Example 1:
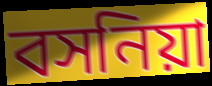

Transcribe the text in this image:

বসনিয়া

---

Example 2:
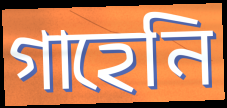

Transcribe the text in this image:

গাহেনি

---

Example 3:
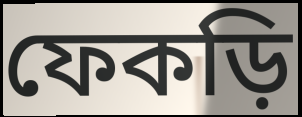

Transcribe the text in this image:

ফেকড়ি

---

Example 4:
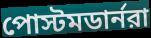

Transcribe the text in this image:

পোস্টমডার্নরা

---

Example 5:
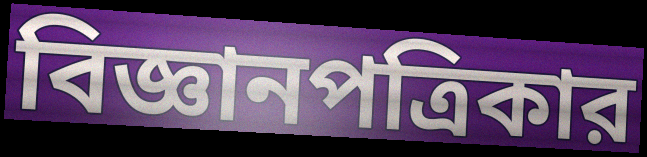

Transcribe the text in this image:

বিজ্ঞানপত্রিকার